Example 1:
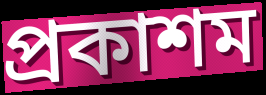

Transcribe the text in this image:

প্ৰকাশম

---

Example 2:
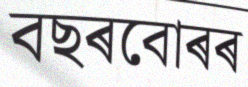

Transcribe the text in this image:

বছৰবোৰৰ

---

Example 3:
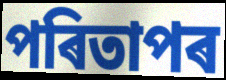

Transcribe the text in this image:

পৰিতাপৰ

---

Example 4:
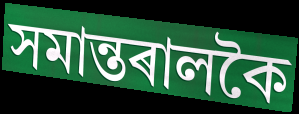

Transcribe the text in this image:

সমান্তৰালকৈ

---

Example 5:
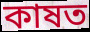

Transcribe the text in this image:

কাষত